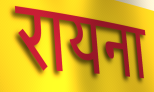
रायना